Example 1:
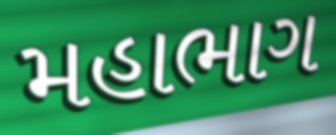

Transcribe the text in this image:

મહાભાગ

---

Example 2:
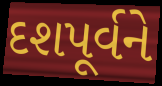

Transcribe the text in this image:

દશપૂર્વને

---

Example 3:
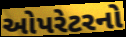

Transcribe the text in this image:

ઓપરેટરનો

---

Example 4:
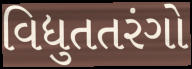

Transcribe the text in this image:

વિદ્યુતતરંગો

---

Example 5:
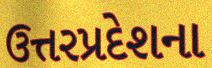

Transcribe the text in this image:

ઉત્તરપ્રદેશના